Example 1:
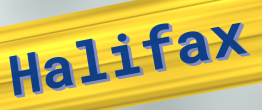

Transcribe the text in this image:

Halifax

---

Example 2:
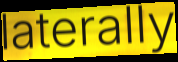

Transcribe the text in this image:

laterally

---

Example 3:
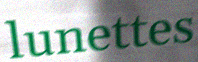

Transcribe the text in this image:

lunettes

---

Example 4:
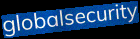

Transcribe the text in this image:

globalsecurity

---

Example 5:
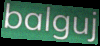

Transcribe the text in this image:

balguj